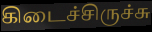
கிடைச்சிருச்சு